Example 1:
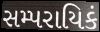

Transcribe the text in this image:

સમ્પરાયિકં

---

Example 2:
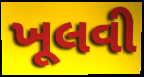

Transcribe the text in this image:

ખૂલવી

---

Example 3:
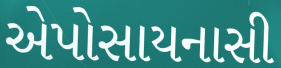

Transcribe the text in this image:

એપોસાયનાસી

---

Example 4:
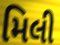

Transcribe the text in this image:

મિલી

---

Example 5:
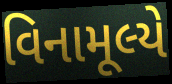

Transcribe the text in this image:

વિનામૂલ્યે